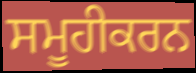
ਸਮੂਹੀਕਰਨ